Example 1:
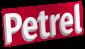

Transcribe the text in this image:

Petrel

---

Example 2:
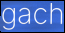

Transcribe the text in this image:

gach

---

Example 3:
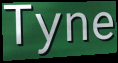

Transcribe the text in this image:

Tyne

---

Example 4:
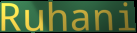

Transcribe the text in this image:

Ruhani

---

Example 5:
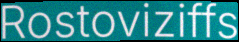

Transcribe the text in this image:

Rostoviziffs